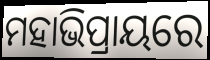
ମହାଭିପ୍ରାୟରେ